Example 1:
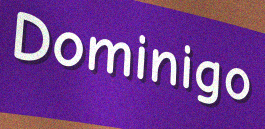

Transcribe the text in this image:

Dominigo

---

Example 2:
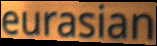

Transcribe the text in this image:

eurasian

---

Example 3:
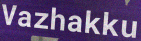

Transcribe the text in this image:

Vazhakku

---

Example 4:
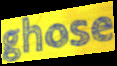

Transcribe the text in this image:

ghose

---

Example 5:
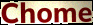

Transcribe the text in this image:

Chome